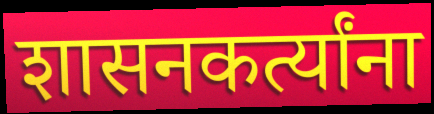
शासनकर्त्यांना